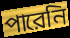
পারেনি